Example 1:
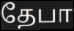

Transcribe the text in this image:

தேபா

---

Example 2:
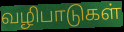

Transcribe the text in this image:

வழிபாடுகள்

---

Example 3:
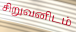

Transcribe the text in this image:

சிறுவனிடம்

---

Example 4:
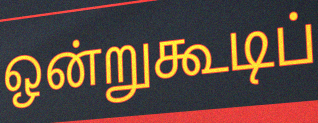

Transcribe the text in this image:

ஒன்றுகூடிப்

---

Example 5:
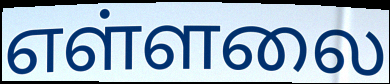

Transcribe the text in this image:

எள்ளலை